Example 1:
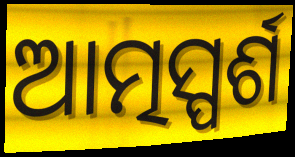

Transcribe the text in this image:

ଆତ୍ମସ୍ପର୍ଶ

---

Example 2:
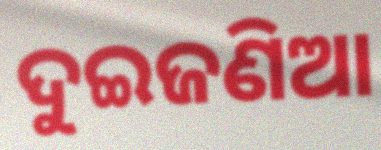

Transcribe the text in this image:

ଦୁଇଜଣିଆ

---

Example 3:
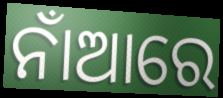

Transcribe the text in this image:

ନାଁଆରେ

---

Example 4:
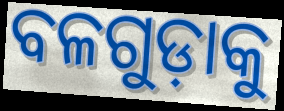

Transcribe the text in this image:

ବଳଗୁଡ଼ାକୁ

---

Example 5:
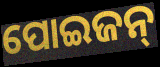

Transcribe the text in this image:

ପୋଇଜନ୍